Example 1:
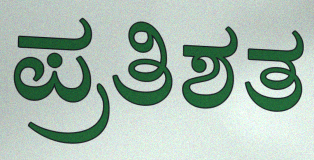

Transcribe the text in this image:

ಪ್ರತಿಶತ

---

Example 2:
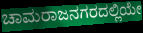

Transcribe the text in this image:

ಚಾಮರಾಜನಗರದಲ್ಲಿಯೇ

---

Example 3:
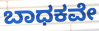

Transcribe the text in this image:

ಬಾಧಕವೇ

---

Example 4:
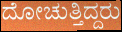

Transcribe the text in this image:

ದೋಚುತ್ತಿದ್ದರು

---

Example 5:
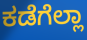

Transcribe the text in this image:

ಕಡೆಗೆಲ್ಲಾ